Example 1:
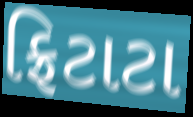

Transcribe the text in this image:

ફ્રિટાટા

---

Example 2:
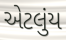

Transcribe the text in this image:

એટલુંય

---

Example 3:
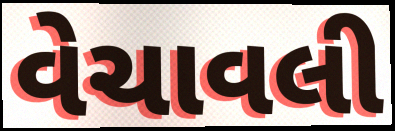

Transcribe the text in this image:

વેચાવલી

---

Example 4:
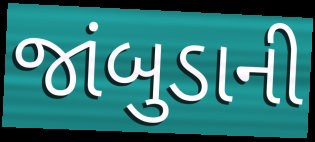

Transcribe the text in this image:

જાંબુડાની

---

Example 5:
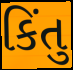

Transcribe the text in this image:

કિંતુ